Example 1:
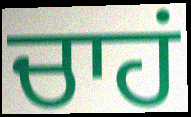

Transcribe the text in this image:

ਚਾਹਂ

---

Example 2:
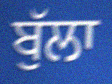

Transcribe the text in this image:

ਬੁੱਲਾ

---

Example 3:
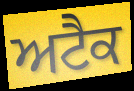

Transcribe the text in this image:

ਅਟੈਕ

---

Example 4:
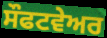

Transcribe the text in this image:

ਸੌਫਟਵੇਅਰ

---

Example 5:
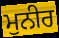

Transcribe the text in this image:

ਮੁਨੀਰ